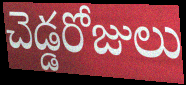
చెడ్డరోజులు